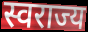
स्वराज्य